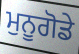
ਮੁਨੂਗੋਡੇ